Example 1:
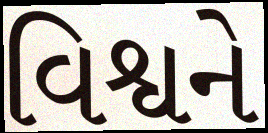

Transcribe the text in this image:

વિશ્વને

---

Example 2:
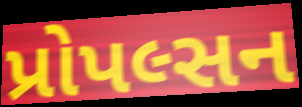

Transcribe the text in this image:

પ્રોપલ્સન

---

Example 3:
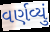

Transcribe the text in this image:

વર્ણવ્યું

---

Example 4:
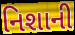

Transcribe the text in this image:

નિશાની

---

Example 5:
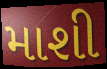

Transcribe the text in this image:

માશી